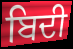
ਬਿਦੀ